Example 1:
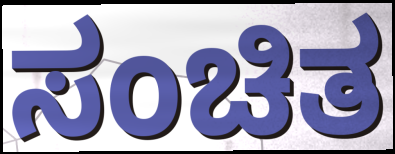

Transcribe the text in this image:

ಸಂಚಿತ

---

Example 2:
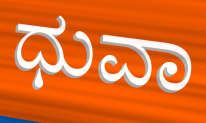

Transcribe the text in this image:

ಧುವಾ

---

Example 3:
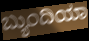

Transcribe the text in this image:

ಬ್ಯುಂದಿಯಾ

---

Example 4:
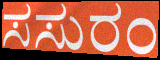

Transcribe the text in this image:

ಸಸುರಂ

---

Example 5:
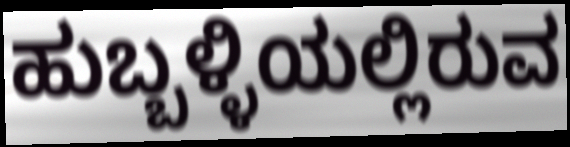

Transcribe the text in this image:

ಹುಬ್ಬಳ್ಳಿಯಲ್ಲಿರುವ